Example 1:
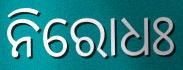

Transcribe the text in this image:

ନିରୋଧଃ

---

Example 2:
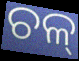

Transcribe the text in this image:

ଚଳ୍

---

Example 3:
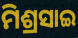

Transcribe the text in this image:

ମିଶ୍ରସାଇ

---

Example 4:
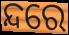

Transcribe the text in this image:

ନ୍ଦରେ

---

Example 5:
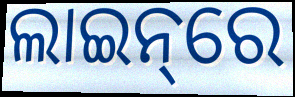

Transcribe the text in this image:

ଲାଇନ୍‌ରେ